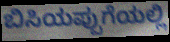
ಬಿಸಿಯಪ್ಪುಗೆಯಲ್ಲಿ